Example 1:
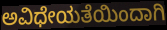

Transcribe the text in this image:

ಅವಿಧೇಯತೆಯಿಂದಾಗಿ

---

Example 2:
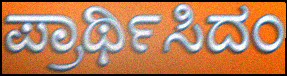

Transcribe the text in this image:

ಪ್ರಾರ್ಥಿಸಿದಂ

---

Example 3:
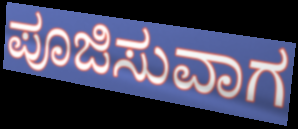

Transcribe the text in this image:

ಪೂಜಿಸುವಾಗ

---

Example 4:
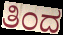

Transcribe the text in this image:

ತಿಂದ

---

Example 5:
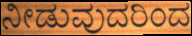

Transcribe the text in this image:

ನೀಡುವುದರಿಂದ